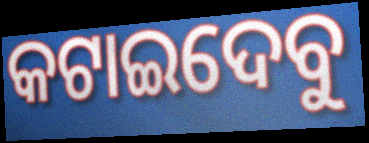
କଟାଇଦେବୁ